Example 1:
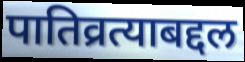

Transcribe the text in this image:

पातिव्रत्याबद्दल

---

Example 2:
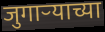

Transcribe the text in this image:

जुगाऱ्याच्या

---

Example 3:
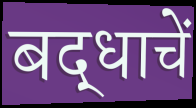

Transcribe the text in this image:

बद्धाचें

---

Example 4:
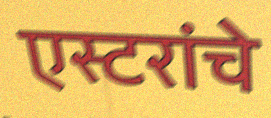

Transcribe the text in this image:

एस्टरांचे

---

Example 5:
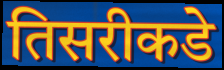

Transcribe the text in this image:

तिसरीकडे